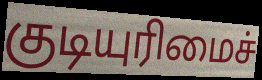
குடியுரிமைச்